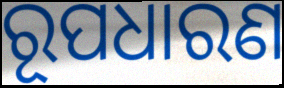
ରୂପଧାରଣ